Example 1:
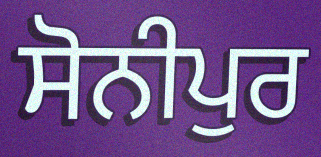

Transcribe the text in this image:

ਸੋਨੀਪੁਰ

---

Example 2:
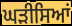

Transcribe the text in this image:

ਘੜੀਸਿਆਂ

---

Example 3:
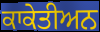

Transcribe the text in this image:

ਕਾਕੇਤੀਅਨ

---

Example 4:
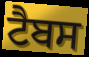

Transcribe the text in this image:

ਟੈਬਸ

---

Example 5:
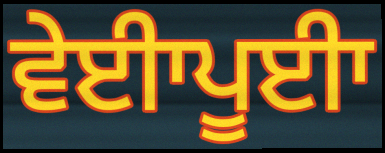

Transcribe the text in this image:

ਵੇਈਾਪੂਈਾ